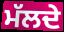
ਮੱਲਦੇ